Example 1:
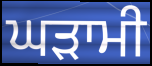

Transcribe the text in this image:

ਘੜਾਮੀ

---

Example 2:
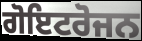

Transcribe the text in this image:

ਗੋਇਟਰੋਜਨ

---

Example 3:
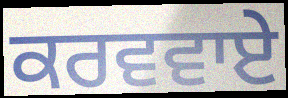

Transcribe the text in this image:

ਕਰਵਵਾਏ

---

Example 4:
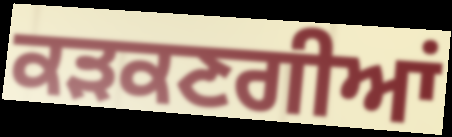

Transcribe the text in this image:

ਕੜਕਣਗੀਆਂ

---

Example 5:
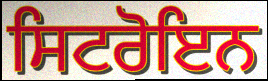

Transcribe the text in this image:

ਸਿਟਰੋਇਨ